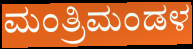
ಮಂತ್ರಿಮಂಡಳ